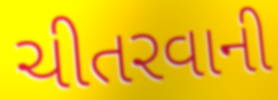
ચીતરવાની